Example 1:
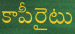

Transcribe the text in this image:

కాపీరైటు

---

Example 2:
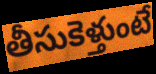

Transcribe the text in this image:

తీసుకెళ్తుంటే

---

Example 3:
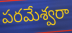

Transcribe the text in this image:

పరమేశ్వరా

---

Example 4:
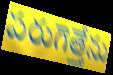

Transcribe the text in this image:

పరుగెత్తేను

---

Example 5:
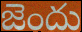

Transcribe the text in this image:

జెందు